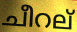
ചീറല്